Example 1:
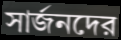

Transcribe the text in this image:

সার্জনদের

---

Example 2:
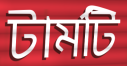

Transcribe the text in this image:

টার্মটি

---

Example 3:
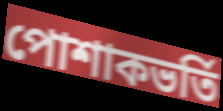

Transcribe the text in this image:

পোশাকভর্তি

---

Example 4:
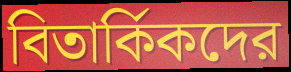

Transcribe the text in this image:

বিতার্কিকদের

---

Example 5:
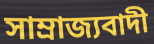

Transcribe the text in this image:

সাম্রাজ্যবাদী